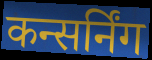
कन्सर्निंग